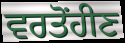
ਵਰਤੋਂਹੀਣ